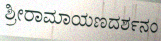
ಶ್ರೀರಾಮಾಯಣದರ್ಶನಂ